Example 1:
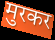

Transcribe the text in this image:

मुरकर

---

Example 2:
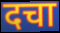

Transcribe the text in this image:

दचा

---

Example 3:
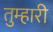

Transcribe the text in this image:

तुम्‍हारी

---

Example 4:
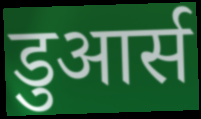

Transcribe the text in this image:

डुआर्स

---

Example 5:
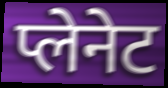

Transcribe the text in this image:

प्लेनेट